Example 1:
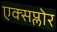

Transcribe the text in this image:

एक्‍सप्लोर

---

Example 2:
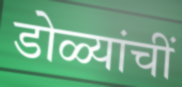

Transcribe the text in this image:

डोळ्यांचीं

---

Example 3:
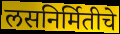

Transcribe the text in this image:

लसनिर्मितीचे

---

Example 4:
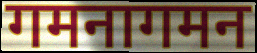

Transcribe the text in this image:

गमनागमन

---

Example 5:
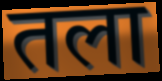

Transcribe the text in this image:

तला